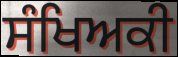
ਸੰਖਿਅਕੀ